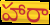
హారా